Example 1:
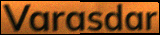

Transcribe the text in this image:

Varasdar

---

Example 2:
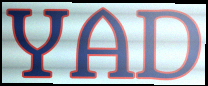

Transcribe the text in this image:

YAD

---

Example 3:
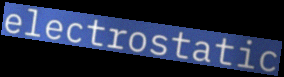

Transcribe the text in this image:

electrostatic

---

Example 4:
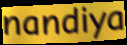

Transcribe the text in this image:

nandiya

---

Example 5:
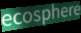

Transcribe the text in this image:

ecosphere